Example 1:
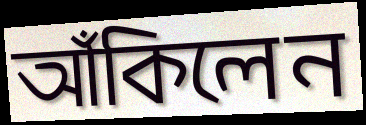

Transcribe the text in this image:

আঁকিলেন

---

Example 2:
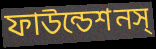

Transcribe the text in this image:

ফাউন্ডেশনস্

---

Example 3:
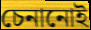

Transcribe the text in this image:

চেনানোই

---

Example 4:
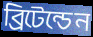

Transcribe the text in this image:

ব্রিটেন্ডেন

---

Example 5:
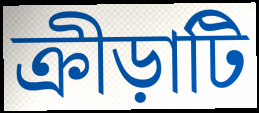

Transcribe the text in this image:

ক্রীড়াটি